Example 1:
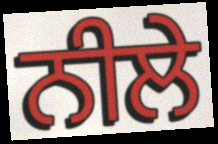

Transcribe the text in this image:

ਨੀਲੇ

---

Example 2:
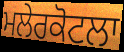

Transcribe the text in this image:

ਮਲੇਰਕੋਟਲਾ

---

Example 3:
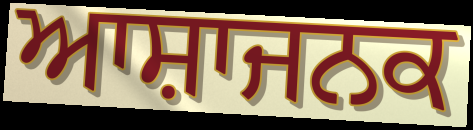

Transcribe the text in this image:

ਆਸ਼ਾਜਨਕ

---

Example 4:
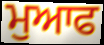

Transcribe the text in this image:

ਮੁਆਫ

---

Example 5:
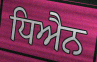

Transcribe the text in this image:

ਧਿਐਨ